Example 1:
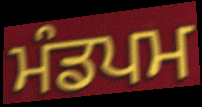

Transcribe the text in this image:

ਮੰਡਪਮ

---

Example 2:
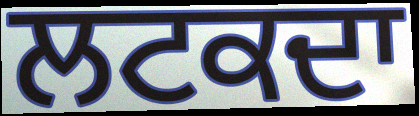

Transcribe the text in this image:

ਲਟਕਦਾ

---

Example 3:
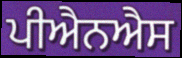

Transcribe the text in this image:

ਪੀਐਨਐਸ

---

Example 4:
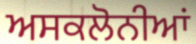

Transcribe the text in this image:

ਅਸਕਲੋਨੀਆਂ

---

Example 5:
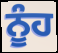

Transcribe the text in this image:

ਨੂੰਹ